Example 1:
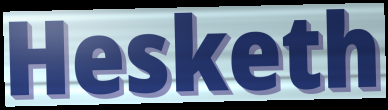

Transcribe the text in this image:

Hesketh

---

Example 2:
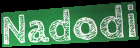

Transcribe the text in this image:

Nadodi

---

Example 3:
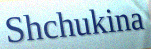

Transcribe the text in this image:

Shchukina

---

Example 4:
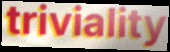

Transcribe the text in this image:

triviality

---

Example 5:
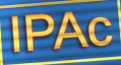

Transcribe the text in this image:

IPAc